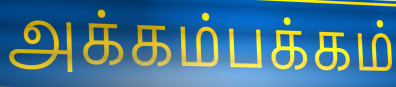
அக்கம்பக்கம்